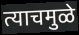
त्याचमुळे